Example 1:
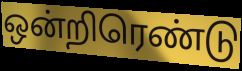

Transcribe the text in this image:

ஒன்றிரெண்டு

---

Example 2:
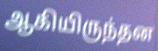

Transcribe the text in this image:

ஆகியிருந்தன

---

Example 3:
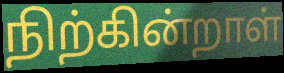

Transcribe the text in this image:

நிற்கின்றாள்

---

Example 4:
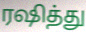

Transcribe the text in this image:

ரஷித்து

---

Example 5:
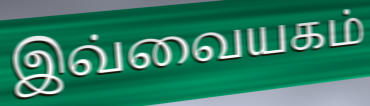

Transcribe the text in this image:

இவ்வையகம்